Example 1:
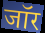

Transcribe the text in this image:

जॉर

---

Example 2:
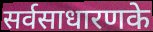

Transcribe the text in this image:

सर्वसाधारणके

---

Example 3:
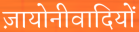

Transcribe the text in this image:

ज़ायोनीवादियों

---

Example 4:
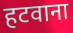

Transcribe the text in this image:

हटवाना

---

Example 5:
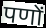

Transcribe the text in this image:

पणों